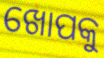
ଖୋପକୁ